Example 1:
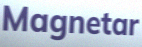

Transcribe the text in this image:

Magnetar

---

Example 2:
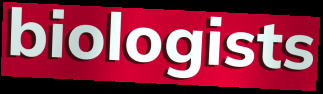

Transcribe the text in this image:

biologists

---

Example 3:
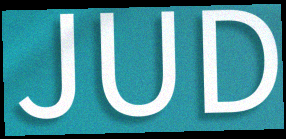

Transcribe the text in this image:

JUD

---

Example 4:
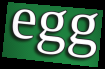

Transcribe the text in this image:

egg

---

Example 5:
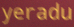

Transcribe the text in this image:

yeradu